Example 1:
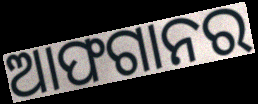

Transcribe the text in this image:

ଆଫଗାନର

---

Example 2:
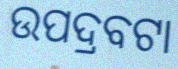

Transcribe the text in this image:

ଉପଦ୍ରବଟା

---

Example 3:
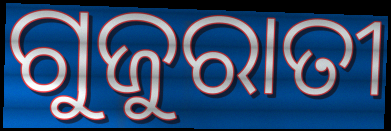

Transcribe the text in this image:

ଗୁଜୁରାତୀ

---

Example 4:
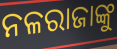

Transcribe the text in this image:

ନଳରାଜାଙ୍କୁ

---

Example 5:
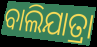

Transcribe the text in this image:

ବାଲିଯାତ୍ରା